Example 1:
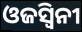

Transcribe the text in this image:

ଓଜସ୍ଵିନୀ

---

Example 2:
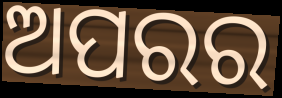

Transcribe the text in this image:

ଅପରର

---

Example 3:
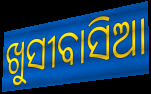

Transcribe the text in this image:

ଖୁସୀବାସିଆ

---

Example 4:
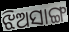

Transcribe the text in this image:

ଝିଅସାଙ୍ଗ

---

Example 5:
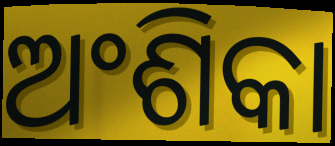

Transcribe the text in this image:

ଅଂଶିକା